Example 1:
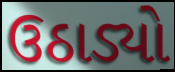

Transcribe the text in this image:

ઉઠાડ્યો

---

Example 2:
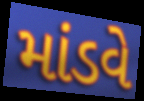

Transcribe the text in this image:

માંડવે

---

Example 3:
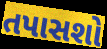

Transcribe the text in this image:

તપાસશો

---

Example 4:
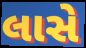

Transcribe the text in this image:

લાસે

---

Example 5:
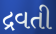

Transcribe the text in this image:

દ્રવતી